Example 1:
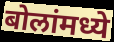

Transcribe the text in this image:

बोलांमध्ये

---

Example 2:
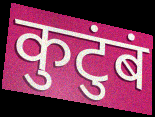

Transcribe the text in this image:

कुटुंबं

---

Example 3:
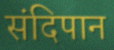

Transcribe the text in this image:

संदिपान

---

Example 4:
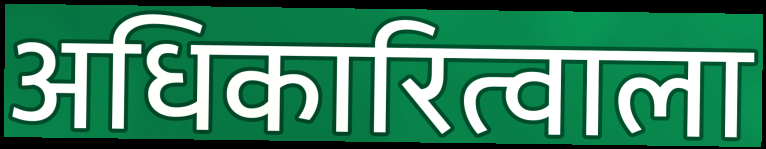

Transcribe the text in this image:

अधिकारित्वाला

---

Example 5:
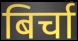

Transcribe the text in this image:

बिर्चा